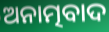
ଅନାତ୍ମବାଦ